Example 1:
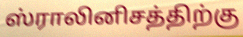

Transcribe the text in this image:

ஸ்ராலினிசத்திற்கு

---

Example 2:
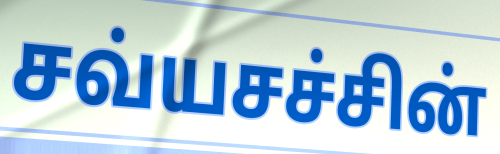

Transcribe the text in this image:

சவ்யசச்சின்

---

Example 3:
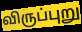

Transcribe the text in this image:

விருப்புறு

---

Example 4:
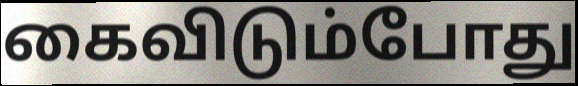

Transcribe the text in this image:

கைவிடும்போது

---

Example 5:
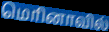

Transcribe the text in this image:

மெரினாவில்